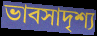
ভাবসাদৃশ্য